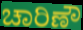
ಚಾರಿಣೌ